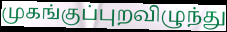
முகங்குப்புறவிழுந்து